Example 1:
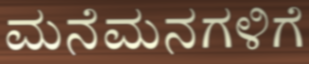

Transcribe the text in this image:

ಮನೆಮನಗಳಿಗೆ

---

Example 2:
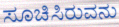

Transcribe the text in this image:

ಸೂಚಿಸಿರುವನು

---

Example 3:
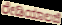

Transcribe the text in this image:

ರೇಡಿಯಾಲಜಿ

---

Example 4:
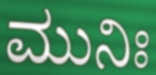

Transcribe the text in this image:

ಮುನಿಃ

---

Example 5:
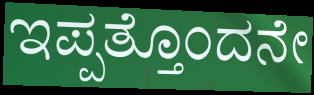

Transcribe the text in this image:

ಇಪ್ಪತ್ತೊಂದನೇ